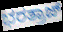
ಭರತ್ರಾಜ್